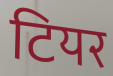
टियर